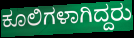
ಕೂಲಿಗಳಾಗಿದ್ದರು